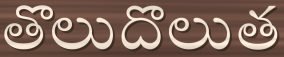
తొలుదొలుత